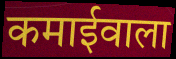
कमाईवाला